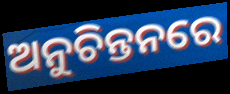
ଅନୁଚିନ୍ତନରେ